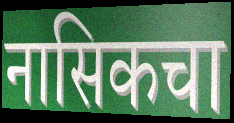
नासिकचा